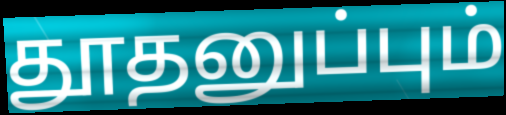
தூதனுப்பும்